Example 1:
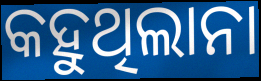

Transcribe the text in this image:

କହୁଥିଲାନା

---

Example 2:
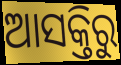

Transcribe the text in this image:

ଆସକ୍ତିରୁ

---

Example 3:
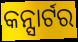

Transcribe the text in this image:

କନ୍ସାର୍ଟର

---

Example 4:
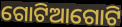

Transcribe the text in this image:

ଗୋଟିଆଗୋଟି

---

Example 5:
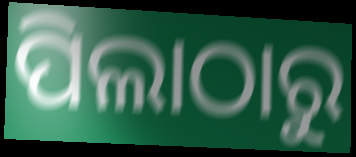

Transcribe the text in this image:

ପିଲାଠାରୁ